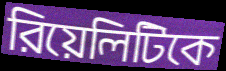
রিয়েলিটিকে